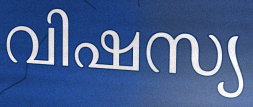
വിഷസ്യ